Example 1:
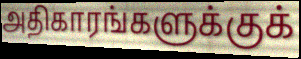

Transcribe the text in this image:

அதிகாரங்களுக்குக்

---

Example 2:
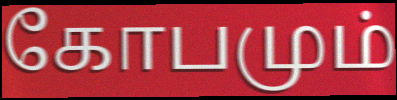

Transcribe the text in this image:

கோபமும்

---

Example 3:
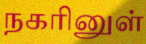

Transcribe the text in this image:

நகரினுள்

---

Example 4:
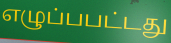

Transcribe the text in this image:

எழுப்பபட்டது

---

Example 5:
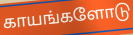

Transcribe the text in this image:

காயங்களோடு